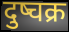
दुष्चक्र